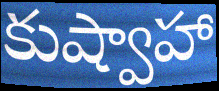
కుష్వాహా